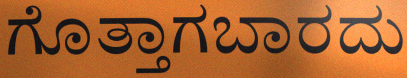
ಗೊತ್ತಾಗಬಾರದು